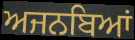
ਅਜਨਬਿਆਂ